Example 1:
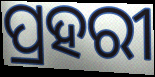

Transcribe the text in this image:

ପ୍ରହରୀ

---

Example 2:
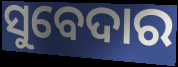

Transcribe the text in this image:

ସୁବେଦାର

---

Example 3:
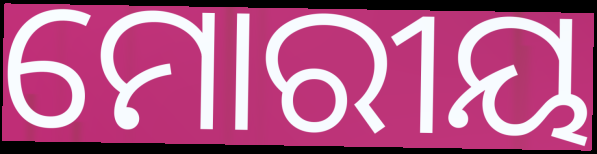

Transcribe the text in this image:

ମୋରୀୟ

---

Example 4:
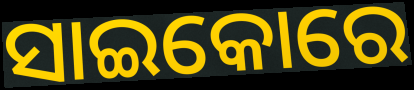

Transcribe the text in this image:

ସାଇକୋରେ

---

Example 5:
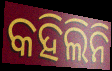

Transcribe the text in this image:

କହିଲିନି